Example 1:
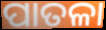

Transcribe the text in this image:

ପାତଳା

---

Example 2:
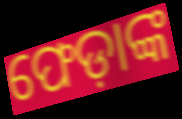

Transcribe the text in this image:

ଫେଡ଼ାଙ୍କ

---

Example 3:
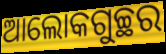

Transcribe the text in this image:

ଆଲୋକଗୁଚ୍ଛର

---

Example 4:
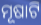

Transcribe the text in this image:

ମୂଷାଟି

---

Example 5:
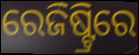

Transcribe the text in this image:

ରେଜିଷ୍ଟ୍ରିରେ